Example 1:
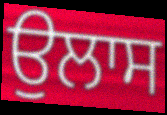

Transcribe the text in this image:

ਉਲਾਸ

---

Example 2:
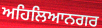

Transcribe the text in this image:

ਅਹਿਲਿਆਨਗਰ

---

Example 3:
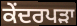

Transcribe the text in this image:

ਕੇਂਦਰਪੜਾ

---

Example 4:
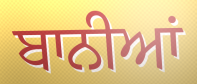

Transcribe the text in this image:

ਬਾਨੀਆਂ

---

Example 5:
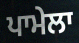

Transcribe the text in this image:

ਪਾਮੇਲਾ